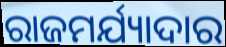
ରାଜମର୍ଯ୍ୟାଦାର